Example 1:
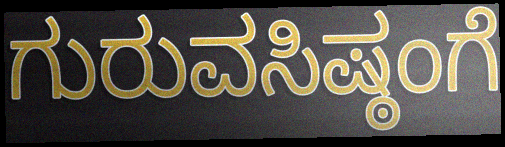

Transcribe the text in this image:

ಗುರುವಸಿಷ್ಠಂಗೆ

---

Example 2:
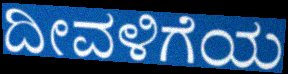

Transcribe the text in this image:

ದೀವಳಿಗೆಯ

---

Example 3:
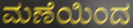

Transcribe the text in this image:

ಮಣೆಯಿಂದ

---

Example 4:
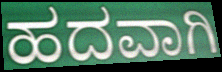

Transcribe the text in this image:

ಹದವಾಗಿ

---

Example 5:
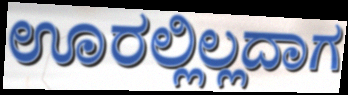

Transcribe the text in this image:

ಊರಲ್ಲಿಲ್ಲದಾಗ